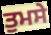
ਤੁਮਸੇ